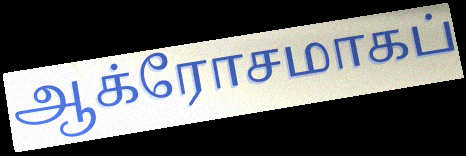
ஆக்ரோசமாகப்